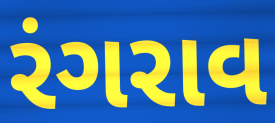
રંગરાવ